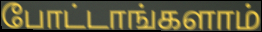
போட்டாங்களாம்